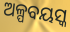
ଅଳ୍ପବୟସ୍କ